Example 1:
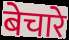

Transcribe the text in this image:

बेचारे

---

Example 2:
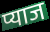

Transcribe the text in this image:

प्याज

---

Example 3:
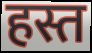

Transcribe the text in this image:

हस्त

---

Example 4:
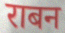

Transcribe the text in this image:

राबन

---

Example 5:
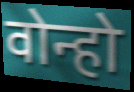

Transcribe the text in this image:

वोन्हो